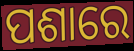
ପଶାରେ